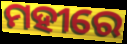
ମହୀରେ